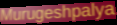
Murugeshpalya